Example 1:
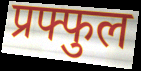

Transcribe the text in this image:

प्रफ्फुल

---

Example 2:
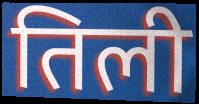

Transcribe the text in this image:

तिली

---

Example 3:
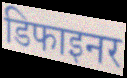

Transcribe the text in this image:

डिफाइनर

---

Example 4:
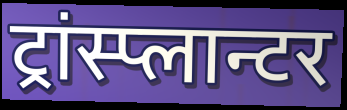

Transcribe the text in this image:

ट्रांस्प्लान्टर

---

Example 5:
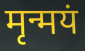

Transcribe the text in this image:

मृन्मयं